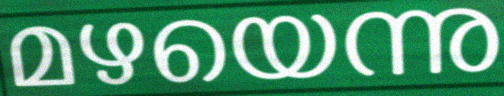
മഴയെന്നു